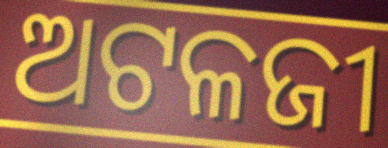
ଅଟଳଜୀ